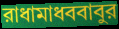
রাধামাধববাবুর